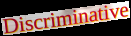
Discriminative